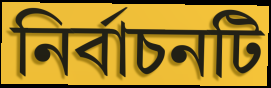
নির্বাচনটি